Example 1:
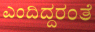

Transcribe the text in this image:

ಎಂದಿದ್ದರಂತೆ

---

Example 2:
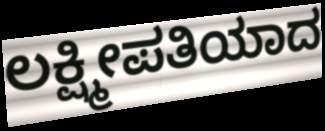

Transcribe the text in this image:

ಲಕ್ಷ್ಮೀಪತಿಯಾದ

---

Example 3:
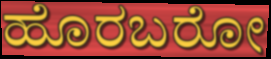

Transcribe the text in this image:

ಹೊರಬರೋ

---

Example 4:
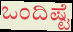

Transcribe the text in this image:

ಒಂದಿಷ್ಟೆ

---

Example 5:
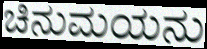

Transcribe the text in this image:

ಚಿನುಮಯನು